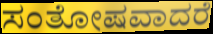
ಸಂತೋಷವಾದರೆ